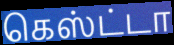
கெஸ்ட்டா